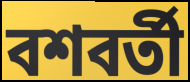
বশবর্তী